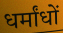
धर्मांधों